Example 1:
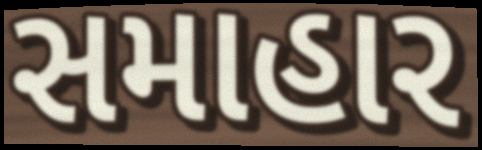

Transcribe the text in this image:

સમાહાર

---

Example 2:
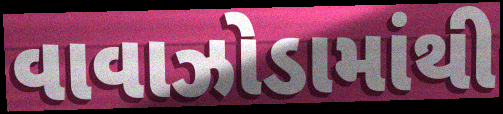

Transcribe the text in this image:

વાવાઝોડામાંથી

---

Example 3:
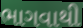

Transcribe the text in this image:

ભાગવાથી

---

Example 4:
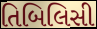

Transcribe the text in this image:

તિબિલિસી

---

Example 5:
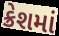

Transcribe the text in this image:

ક્રેશમાં